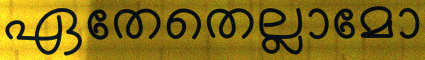
ഏതേതെല്ലാമോ